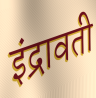
इंद्रावती